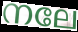
നലേ